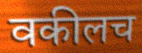
वकीलच